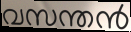
വസന്തൻ